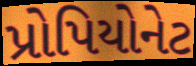
પ્રોપિયોનેટ